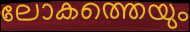
ലോകത്തെയും